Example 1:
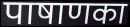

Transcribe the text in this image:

पाषाणका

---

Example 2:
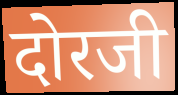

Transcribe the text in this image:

दोरजी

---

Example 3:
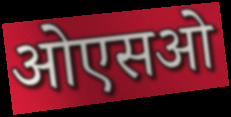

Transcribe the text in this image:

ओएसओ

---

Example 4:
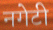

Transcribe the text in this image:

नगेटी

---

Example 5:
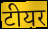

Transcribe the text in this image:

टीयर